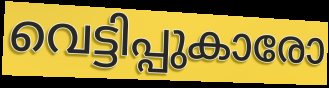
വെട്ടിപ്പുകാരോ